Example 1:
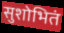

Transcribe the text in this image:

सुशोभितं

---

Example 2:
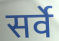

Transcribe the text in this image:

सर्वे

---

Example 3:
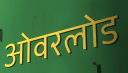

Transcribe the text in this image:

ओवरलोड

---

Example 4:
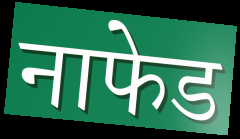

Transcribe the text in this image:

नाफेड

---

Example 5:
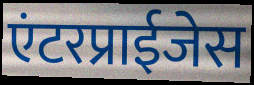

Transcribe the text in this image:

एंटरप्राईजेस